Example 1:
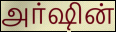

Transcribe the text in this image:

அர்ஷின்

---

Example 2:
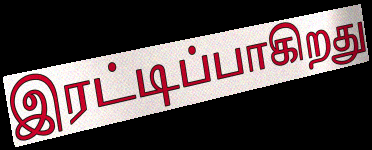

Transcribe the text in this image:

இரட்டிப்பாகிறது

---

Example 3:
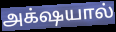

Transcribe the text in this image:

அக்‌ஷயால்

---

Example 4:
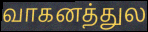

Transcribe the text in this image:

வாகனத்துல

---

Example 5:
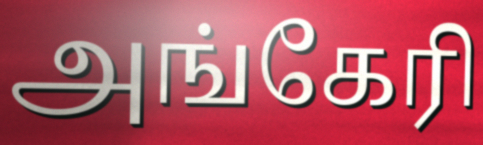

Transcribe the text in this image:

அங்கேரி